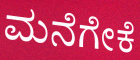
ಮನೆಗೇಕೆ